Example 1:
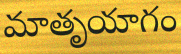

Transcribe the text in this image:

మాతృయాగం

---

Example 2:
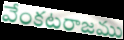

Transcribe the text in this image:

వేంకటరాజము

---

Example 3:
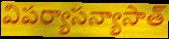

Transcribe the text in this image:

విపర్యాసన్యాసాత్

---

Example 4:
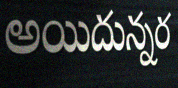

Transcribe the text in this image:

అయిదున్నర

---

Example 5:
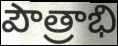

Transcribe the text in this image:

పౌత్రాభి